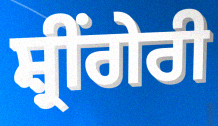
ਸ਼੍ਰੀਂਗੇਰੀ